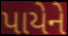
પાયેને